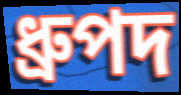
ধ্ৰুপদ